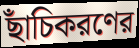
ছাঁচিকরণের